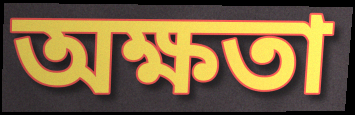
অক্ষতা